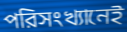
পরিসংখ্যানেই